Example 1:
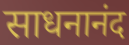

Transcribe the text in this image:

साधनानंद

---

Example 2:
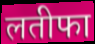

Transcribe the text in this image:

लतीफा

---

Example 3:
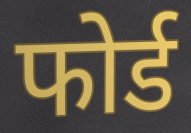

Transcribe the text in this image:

फोर्ड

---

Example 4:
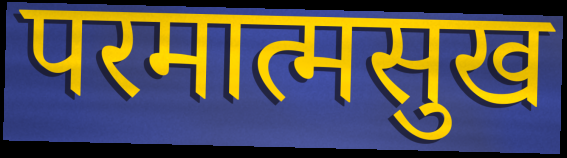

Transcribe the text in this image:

परमात्मसुख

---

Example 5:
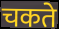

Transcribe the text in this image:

चकते